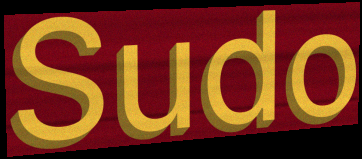
Sudo